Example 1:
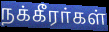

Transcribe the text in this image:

நக்கீரர்கள்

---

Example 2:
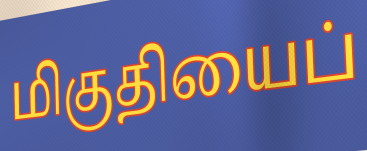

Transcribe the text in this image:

மிகுதியைப்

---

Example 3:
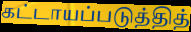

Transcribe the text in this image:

கட்டாயப்படுத்தித்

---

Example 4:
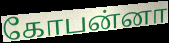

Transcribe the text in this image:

கோபன்னா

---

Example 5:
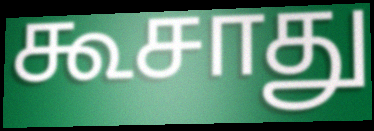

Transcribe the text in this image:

கூசாது